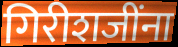
गिरीशजींना